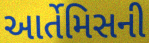
આર્તેમિસની